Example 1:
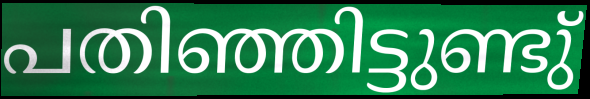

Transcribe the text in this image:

പതിഞ്ഞിട്ടുണ്ടു്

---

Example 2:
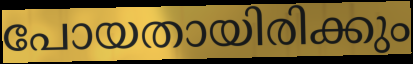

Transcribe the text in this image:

പോയതായിരിക്കും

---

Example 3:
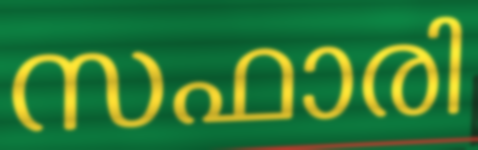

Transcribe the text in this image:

സഫാരി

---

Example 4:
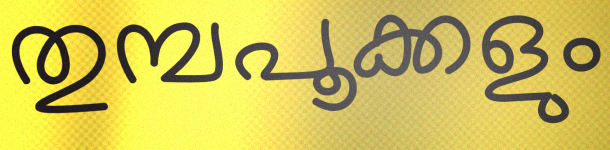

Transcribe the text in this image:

തുമ്പപൂക്കളും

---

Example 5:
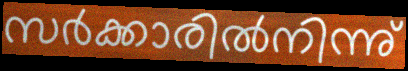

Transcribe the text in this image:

സർക്കാരിൽനിന്നു്